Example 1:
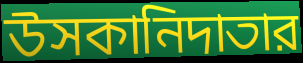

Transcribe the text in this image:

উসকানিদাতার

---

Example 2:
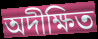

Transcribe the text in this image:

অদীক্ষিত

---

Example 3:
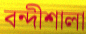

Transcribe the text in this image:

বন্দীশালা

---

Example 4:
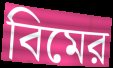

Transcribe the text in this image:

বিমের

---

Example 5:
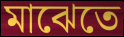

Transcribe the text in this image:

মাঝেতে